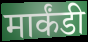
मार्कंडी